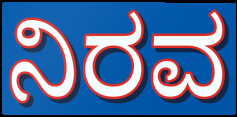
ನಿರವ